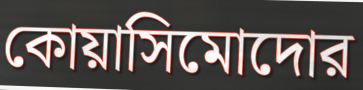
কোয়াসিমোদোর